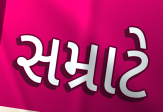
સમ્રાટે